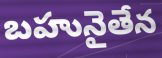
బహునైతేన